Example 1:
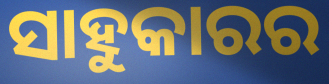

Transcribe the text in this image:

ସାହୁକାରର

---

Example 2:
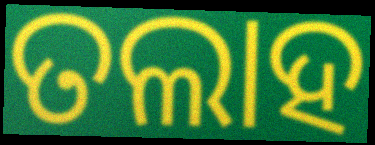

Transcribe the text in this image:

ତଲାହ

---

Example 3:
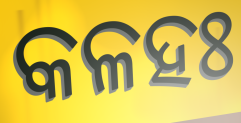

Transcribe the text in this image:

କଳହଃ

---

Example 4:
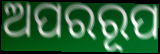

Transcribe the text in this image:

ଅପରରୂପ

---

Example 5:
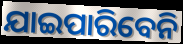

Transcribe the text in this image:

ଯାଇପାରିବେନି